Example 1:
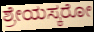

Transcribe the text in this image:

ಶ್ರೇಯಸ್ಕರೋ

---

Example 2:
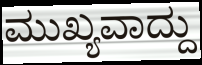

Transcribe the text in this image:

ಮುಖ್ಯವಾದ್ದು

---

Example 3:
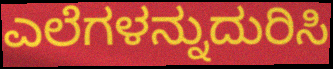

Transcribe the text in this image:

ಎಲೆಗಳನ್ನುದುರಿಸಿ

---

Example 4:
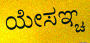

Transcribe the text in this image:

ಯೇಸಞ್ಚ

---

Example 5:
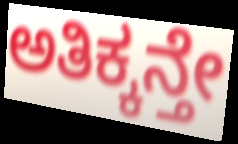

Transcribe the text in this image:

ಅತಿಕ್ಕನ್ತೇ